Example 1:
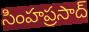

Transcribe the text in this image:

సింహప్రసాద్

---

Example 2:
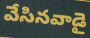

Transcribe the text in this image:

వేసినవాడై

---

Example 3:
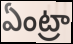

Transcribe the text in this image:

ఏంట్రా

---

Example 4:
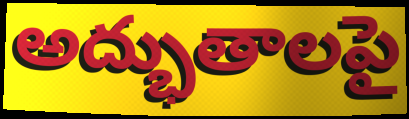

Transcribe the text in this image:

అద్భుతాలపై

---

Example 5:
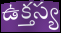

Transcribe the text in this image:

ఉక్తస్య